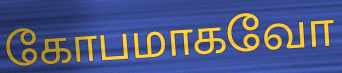
கோபமாகவோ